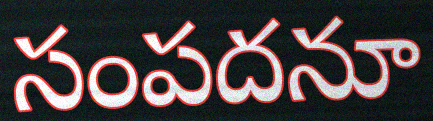
సంపదనూ